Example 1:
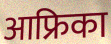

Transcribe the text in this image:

आफ्रिका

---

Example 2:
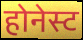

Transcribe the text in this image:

होनेस्ट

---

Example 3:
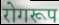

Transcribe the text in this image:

रोगरूप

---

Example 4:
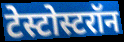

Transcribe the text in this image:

टेस्टोस्टरॉन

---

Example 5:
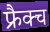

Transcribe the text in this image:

फ्रैक्च